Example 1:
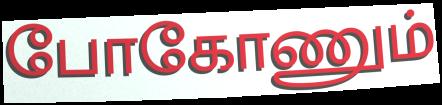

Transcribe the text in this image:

போகோணும்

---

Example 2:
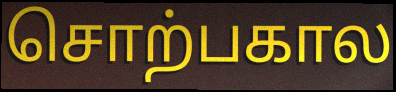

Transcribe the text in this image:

சொற்பகால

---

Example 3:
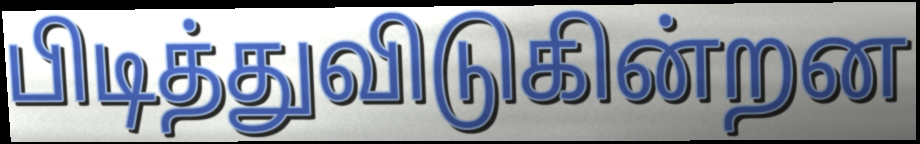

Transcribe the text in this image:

பிடித்துவிடுகின்றன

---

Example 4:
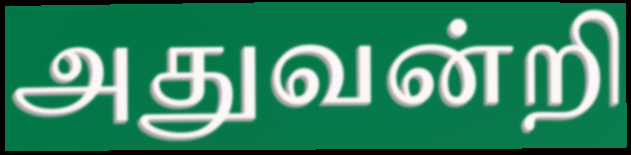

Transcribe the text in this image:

அதுவன்றி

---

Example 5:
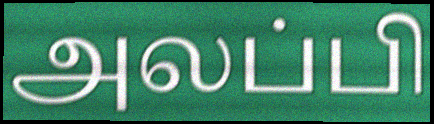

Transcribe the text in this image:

அலப்பி